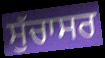
ਸੁੱਚਾਸਰ